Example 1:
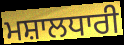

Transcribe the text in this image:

ਮਸ਼ਾਲਧਾਰੀ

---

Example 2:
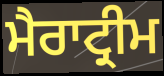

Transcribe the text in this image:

ਮੈਰਾਟ੍ਰੀਮ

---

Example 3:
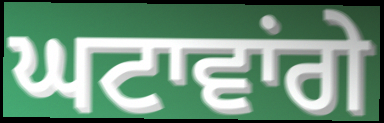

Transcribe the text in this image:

ਘਟਾਵਾਂਗੇ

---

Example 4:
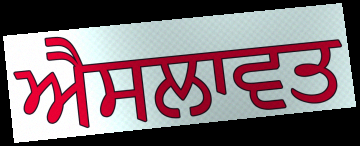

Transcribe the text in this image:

ਐਸਲਾਵਤ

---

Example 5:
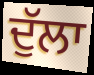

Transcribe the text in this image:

ਦੁੱਲਾ